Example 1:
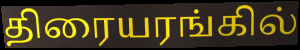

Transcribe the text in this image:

திரையரங்கில்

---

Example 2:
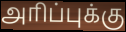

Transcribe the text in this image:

அரிப்புக்கு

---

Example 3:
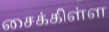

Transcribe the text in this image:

சைக்கிள்ள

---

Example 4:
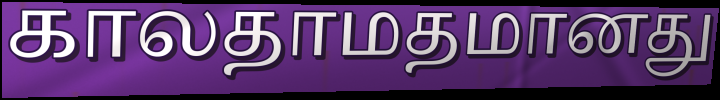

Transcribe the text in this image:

காலதாமதமானது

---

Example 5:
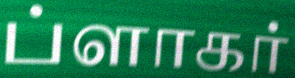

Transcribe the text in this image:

ப்ளாகர்